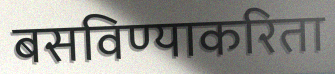
बसविण्याकरिता